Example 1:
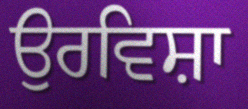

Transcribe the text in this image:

ਉਰਵਿਸ਼ਾ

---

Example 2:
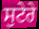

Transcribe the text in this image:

ਸੁਟੇਰੇ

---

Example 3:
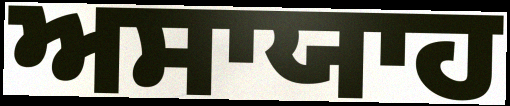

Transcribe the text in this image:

ਅਸਾਯਾਹ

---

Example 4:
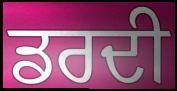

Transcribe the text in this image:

ਡਰਦੀ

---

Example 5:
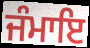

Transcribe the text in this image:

ਜੰਮਾਇ